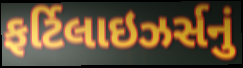
ફર્ટિલાઇઝર્સનું